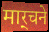
मार्चने